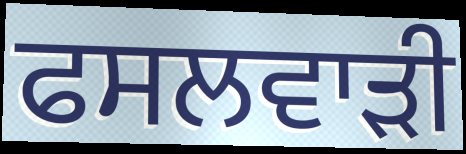
ਫਸਲਵਾੜੀ